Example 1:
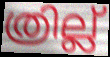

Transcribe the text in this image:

ത്രില്ല്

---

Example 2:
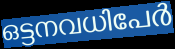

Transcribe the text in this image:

ഒട്ടനവധിപേർ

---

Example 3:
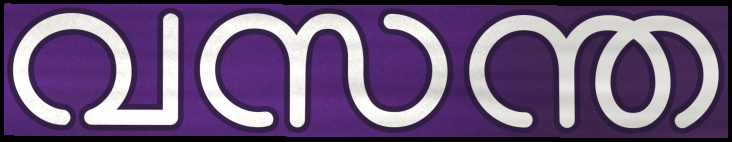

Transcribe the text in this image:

വസന്ത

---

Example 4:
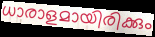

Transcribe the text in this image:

ധാരാളമായിരിക്കും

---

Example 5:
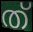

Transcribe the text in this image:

ത്